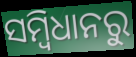
ସମ୍ବିଧାନରୁ